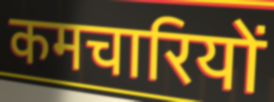
कमचारियों